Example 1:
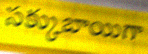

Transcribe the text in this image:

సక్కుబాయిగా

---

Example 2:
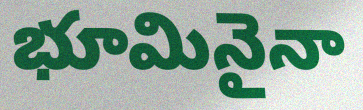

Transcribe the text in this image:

భూమినైనా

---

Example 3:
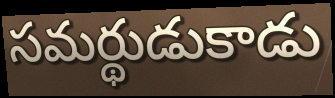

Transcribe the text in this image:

సమర్థుడుకాడు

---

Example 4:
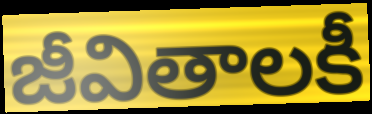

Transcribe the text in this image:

జీవితాలకీ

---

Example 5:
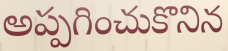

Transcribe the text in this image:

అప్పగించుకొనిన